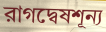
রাগদ্বেষশূন্য